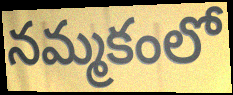
నమ్మకంలో